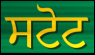
ਸਟੋਟ